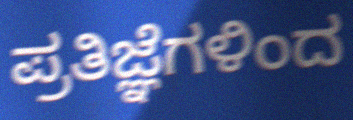
ಪ್ರತಿಜ್ಞೆಗಳಿಂದ